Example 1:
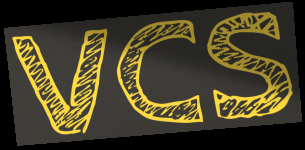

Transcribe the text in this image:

VCS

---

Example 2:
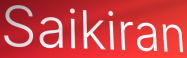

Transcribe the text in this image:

Saikiran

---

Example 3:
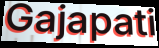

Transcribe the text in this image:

Gajapati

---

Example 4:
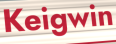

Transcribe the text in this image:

Keigwin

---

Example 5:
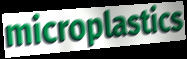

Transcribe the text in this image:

microplastics